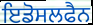
ਇਡੋਸਲਫੈਨ